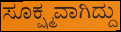
ಸೂಕ್ಷ್ಮವಾಗಿದ್ದು